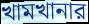
খামখানার